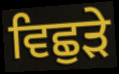
ਵਿਛੁੜੇ